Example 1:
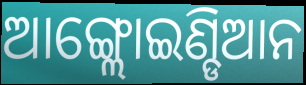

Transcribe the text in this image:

ଆଙ୍ଗ୍ଲୋଇଣ୍ଡିଆନ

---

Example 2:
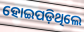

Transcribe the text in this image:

ହୋଇପଡ଼ିଥିଲେ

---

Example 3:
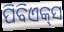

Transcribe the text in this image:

ପିବିଏକ୍‌ସ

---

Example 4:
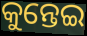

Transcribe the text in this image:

କୁନ୍ତେଇ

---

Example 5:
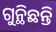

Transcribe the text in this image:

ଗୁନ୍ଥିଛନ୍ତି